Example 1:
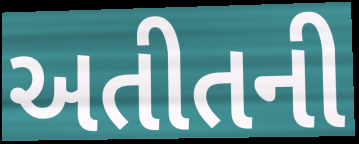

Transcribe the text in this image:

અતીતની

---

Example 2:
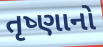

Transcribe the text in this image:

તૃષ્ણાનો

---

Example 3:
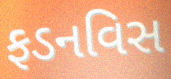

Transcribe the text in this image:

ફડનવિસ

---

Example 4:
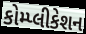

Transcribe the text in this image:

કોમ્પ્લીકેશન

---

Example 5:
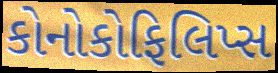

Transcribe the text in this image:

કોનોકોફિલિપ્સ